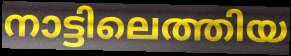
നാട്ടിലെത്തിയ